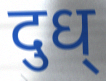
दुध्